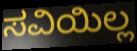
ಸವಿಯಿಲ್ಲ